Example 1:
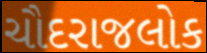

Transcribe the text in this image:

ચૌદરાજલોક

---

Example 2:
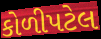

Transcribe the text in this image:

કોળીપટેલ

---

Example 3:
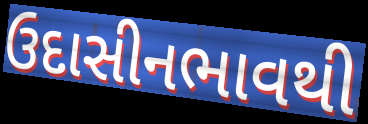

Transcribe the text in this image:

ઉદાસીનભાવથી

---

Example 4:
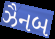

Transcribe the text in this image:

ઝૈનબ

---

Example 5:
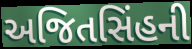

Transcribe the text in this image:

અજિતસિંહની